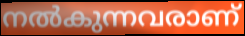
നൽകുന്നവരാണ്